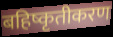
बहिष्कृतीकरण